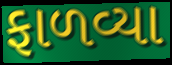
ફાળવ્યા